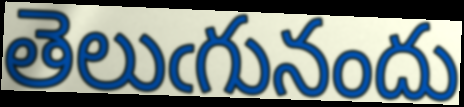
తెలుఁగునందు